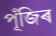
পূঁজিৰ